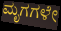
ಮೃಗಗಳೇ